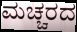
ಮಚ್ಚರದ